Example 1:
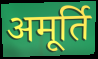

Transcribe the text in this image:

अमूर्ति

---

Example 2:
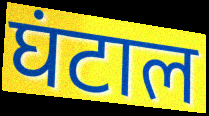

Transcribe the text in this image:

घंटाल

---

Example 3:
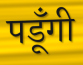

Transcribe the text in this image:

पडूँगी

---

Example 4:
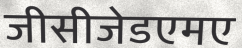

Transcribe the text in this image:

जीसीजेडएमए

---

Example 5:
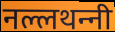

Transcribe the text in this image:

नल्लथन्नी